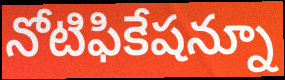
నోటిఫికేషన్నూ